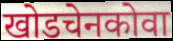
खोडचेनकोवा